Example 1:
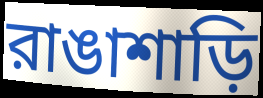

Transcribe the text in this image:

রাঙাশাড়ি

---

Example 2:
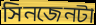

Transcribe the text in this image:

সিনজেনটা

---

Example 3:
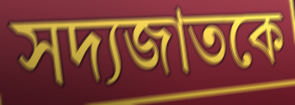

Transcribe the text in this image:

সদ্যজাতকে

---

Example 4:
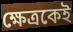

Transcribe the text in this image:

ক্ষেত্রকেই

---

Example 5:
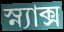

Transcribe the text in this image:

স্ন্যাক্স